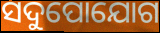
ସଦୁପୋଯୋଗ